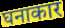
घनाकार